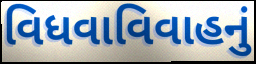
વિધવાવિવાહનું